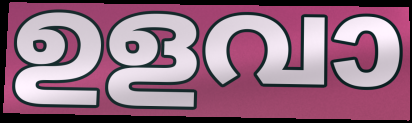
ഉളവാ